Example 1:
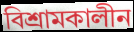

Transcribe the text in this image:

বিশ্রামকালীন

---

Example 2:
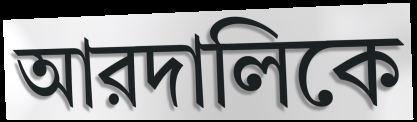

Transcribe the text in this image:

আরদালিকে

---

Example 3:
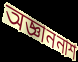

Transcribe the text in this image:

অজ্ঞাননাশ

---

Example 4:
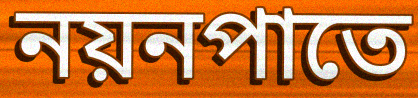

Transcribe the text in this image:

নয়নপাতে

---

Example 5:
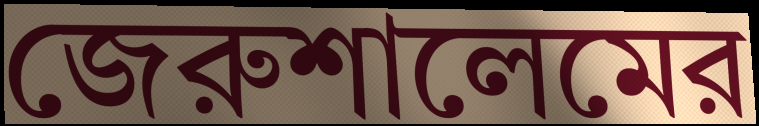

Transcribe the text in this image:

জেরুশালেমের